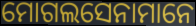
ମୋଗଲସେନାମାନେ